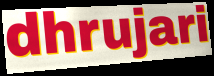
dhrujari